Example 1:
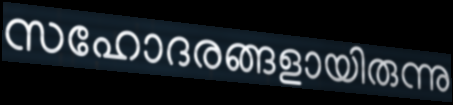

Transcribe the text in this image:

സഹോദരങ്ങളായിരുന്നു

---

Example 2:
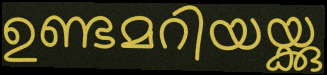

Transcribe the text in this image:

ഉണ്ടമറിയയ്ക്കു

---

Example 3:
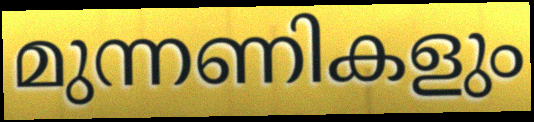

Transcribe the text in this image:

മുന്നണികളും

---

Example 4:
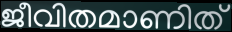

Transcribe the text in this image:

ജീവിതമാണിത്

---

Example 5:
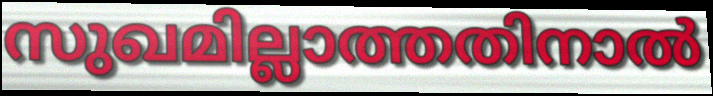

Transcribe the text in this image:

സുഖമില്ലാത്തതിനാൽ